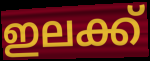
ഇലക്ക്